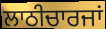
ਲਾਠੀਚਾਰਜਾਂ